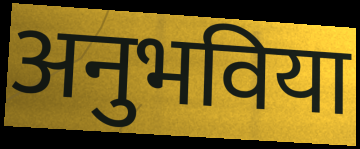
अनुभविया